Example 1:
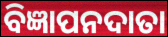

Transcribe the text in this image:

ବିଜ୍ଞାପନଦାତା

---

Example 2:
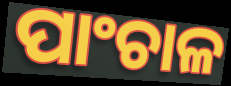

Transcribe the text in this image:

ପାଂଚାଳ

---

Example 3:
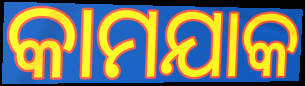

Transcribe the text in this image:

କାମଯାକ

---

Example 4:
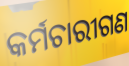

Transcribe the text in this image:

କର୍ମଚାରୀଗଣ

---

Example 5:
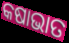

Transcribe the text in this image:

କଷାଭାତ